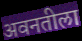
अवनतीला